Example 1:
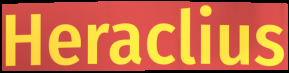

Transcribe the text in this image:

Heraclius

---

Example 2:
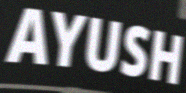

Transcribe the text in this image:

AYUSH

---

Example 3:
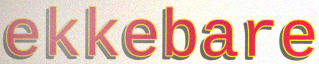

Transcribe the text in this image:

ekkebare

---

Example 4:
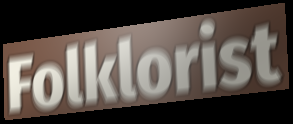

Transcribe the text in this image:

Folklorist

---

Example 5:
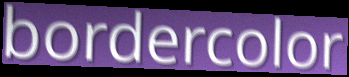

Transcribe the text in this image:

bordercolor